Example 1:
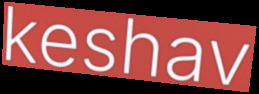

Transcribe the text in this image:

keshav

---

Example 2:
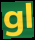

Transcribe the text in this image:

gl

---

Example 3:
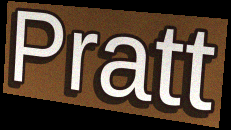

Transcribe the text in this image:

Pratt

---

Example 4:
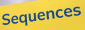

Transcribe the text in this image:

Sequences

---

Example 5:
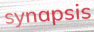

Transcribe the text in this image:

synapsis